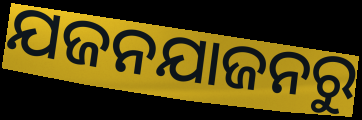
ଯଜନଯାଜନରୁ